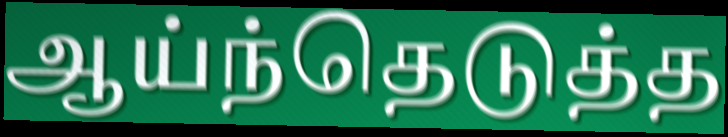
ஆய்ந்தெடுத்த